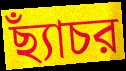
ছ্যাঁচর